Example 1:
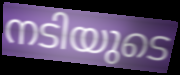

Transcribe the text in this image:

നടിയുടെ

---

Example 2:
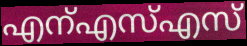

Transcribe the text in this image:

എന്എസ്എസ്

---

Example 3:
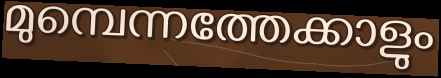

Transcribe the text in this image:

മുമ്പെന്നത്തേക്കാളും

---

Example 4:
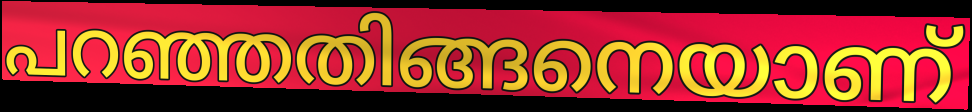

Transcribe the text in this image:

പറഞ്ഞതിങ്ങനെയാണ്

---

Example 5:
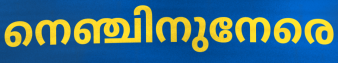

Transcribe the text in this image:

നെഞ്ചിനുനേരെ